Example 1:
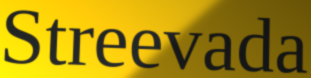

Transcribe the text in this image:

Streevada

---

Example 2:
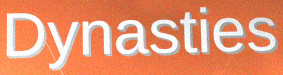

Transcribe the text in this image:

Dynasties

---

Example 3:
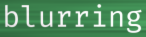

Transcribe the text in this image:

blurring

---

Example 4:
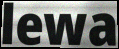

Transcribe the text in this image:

lewa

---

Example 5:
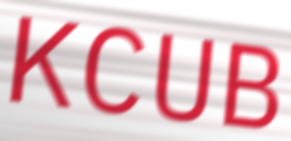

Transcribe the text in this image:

KCUB